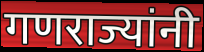
गणराज्यांनी